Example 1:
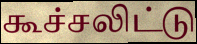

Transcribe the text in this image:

கூச்சலிட்டு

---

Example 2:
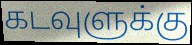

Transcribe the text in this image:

கடவுளுக்கு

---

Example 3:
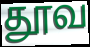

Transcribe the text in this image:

தூவ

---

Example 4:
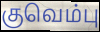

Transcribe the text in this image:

குவெம்பு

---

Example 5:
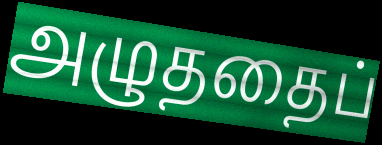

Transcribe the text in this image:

அழுததைப்